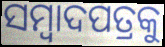
ସମ୍ବାଦପତ୍ରକୁ